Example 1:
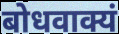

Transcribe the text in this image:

बोधवाक्यं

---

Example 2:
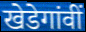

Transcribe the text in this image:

खेडेगांवीं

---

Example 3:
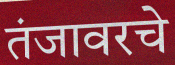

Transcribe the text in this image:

तंजावरचे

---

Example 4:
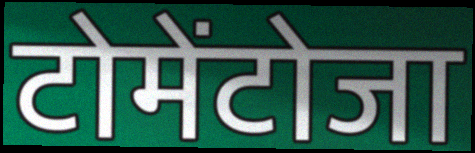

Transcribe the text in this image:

टोमेंटोजा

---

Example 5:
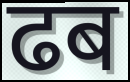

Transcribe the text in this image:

ढब